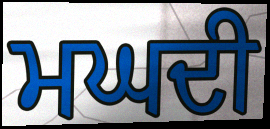
ਮਘਦੀ